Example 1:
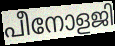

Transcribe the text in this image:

പീനോളജി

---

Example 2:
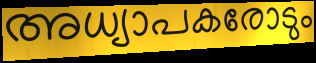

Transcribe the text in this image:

അധ്യാപകരോടും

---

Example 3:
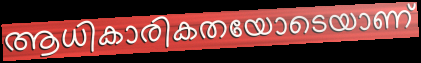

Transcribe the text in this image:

ആധികാരികതയോടെയാണ്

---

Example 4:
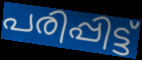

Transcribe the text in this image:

പരിപ്പിട്ട്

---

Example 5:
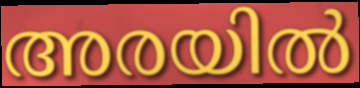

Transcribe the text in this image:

അരയിൽ